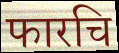
फारचि